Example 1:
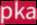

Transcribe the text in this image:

pka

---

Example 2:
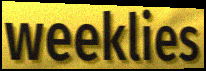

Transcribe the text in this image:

weeklies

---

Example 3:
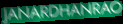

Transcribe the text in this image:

JANARDHANRAO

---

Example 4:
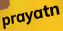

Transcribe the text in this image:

prayatn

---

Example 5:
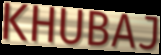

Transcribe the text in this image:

KHUBAJ